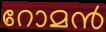
റോമൻ